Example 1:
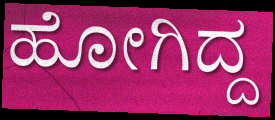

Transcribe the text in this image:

ಹೋಗಿದ್ದ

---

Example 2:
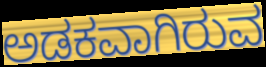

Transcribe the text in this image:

ಅಡಕವಾಗಿರುವ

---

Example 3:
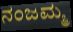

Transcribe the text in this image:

ನಂಜಮ್ಮ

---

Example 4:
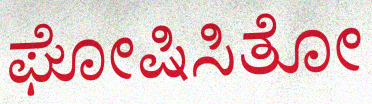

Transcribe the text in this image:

ಘೋಷಿಸಿತೋ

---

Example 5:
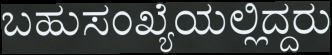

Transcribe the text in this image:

ಬಹುಸಂಖ್ಯೆಯಲ್ಲಿದ್ದರು